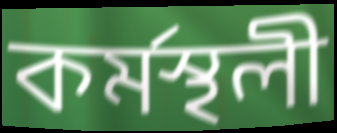
কৰ্মস্থলী